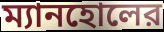
ম্যানহোলের